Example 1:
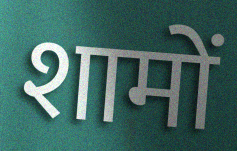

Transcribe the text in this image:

शामों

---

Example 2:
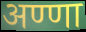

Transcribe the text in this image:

अण्णा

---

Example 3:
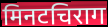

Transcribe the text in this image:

मिनटचिराग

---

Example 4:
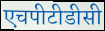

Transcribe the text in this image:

एचपीटीडीसी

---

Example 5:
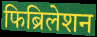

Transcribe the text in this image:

फिब्रिलेशन